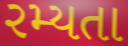
રમ્યતા